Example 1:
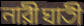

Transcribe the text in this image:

নারীঘাতী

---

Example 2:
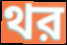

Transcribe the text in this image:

থর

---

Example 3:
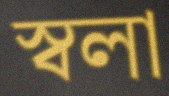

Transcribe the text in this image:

স্বলা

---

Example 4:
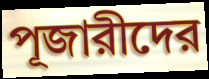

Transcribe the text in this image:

পূজারীদের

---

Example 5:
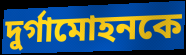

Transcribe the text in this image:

দুর্গামোহনকে